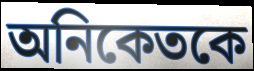
অনিকেতকে